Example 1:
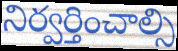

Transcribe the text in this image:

నిర్వర్తించాల్సి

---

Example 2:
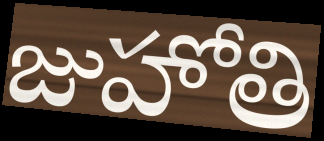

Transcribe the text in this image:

జుహోతి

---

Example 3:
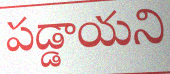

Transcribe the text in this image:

పడ్డాయని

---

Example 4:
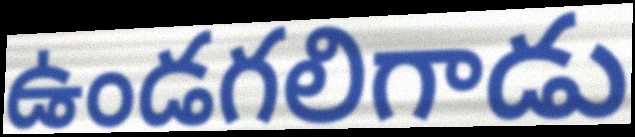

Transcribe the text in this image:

ఉండగలిగాడు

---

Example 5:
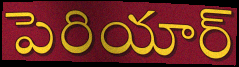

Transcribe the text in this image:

పెరియార్